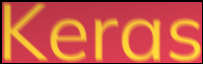
Keras